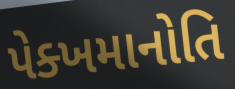
પેક્ખમાનોતિ